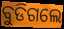
ବୁଡିଗଲେ